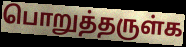
பொறுத்தருள்க